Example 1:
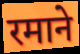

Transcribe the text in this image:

रमाने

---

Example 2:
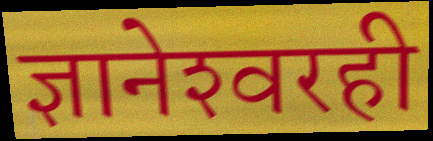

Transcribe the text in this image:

ज्ञानेश्वरही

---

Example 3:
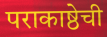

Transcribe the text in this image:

पराकाष्ठेची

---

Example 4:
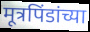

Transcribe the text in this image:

मूत्रपिंडांच्या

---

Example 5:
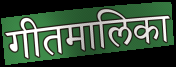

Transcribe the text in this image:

गीतमालिका